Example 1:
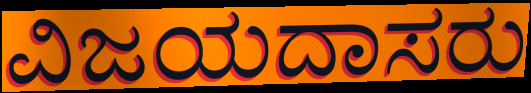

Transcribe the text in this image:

ವಿಜಯದಾಸರು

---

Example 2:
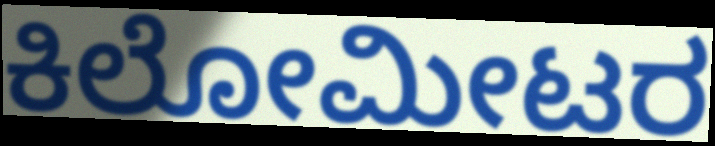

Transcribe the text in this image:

ಕಿಲೋಮೀಟರ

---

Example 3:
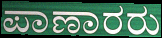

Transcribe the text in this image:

ಪಾಣಾರರು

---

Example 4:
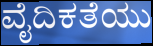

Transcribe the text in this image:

ವೈದಿಕತೆಯು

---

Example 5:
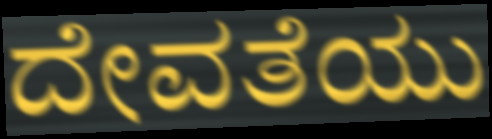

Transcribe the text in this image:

ದೇವತೆಯು